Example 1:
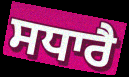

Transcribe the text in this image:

ਸਧਾਰੈ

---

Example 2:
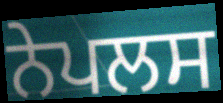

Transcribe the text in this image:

ਨੇਪਲਸ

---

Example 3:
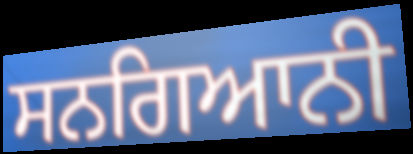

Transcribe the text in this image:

ਸਨਗਿਆਨੀ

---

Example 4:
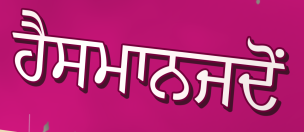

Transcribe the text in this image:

ਹੈਸਮਾਨਜਦੋਂ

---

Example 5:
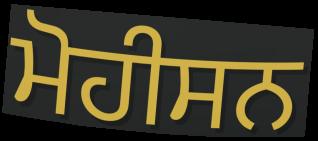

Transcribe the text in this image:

ਮੋਹੀਸਨ